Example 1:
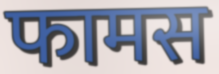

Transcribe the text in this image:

फामस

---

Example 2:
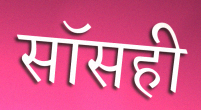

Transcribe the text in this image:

सॉसही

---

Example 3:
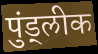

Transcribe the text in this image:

पुंड्लीक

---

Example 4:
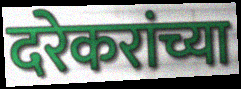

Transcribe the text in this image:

दरेकरांच्या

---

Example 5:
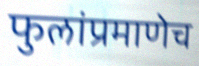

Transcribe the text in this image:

फुलांप्रमाणेच